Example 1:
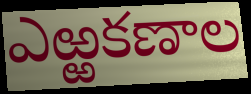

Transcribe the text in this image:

ఎఱ్ఱకణాల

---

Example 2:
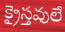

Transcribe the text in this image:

క్రైస్తవులే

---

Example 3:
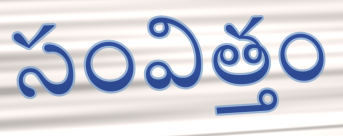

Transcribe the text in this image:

సంవిత్తం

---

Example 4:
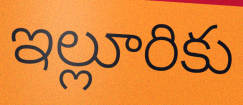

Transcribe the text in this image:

ఇల్లూరికు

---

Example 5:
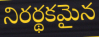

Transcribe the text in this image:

నిరర్థకమైన